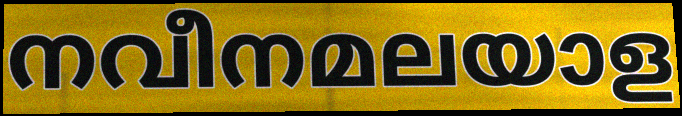
നവീനമലയാള